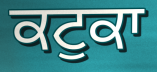
ਕਟੁਕਾ